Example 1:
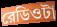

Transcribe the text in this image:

রেডিওটা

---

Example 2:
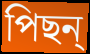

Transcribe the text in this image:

পিছন্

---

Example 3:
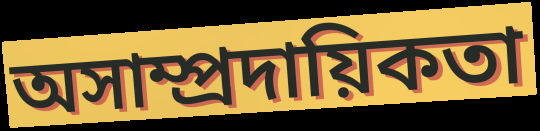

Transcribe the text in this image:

অসাম্প্রদায়িকতা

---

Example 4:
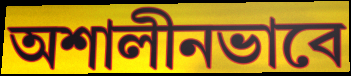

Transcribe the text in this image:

অশালীনভাবে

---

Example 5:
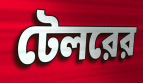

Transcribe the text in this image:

টেলরের